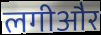
लगीऔर